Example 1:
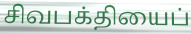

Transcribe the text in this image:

சிவபக்தியைப்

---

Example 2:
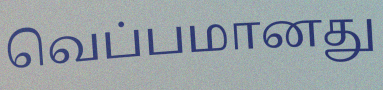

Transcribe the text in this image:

வெப்பமானது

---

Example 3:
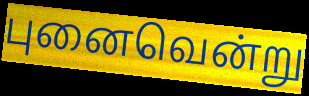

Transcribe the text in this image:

புனைவென்று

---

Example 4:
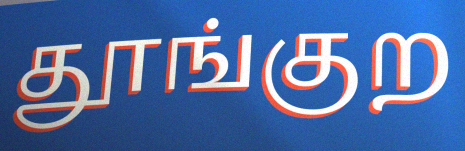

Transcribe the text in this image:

தூங்குற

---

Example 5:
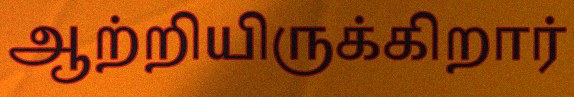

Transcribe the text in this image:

ஆற்றியிருக்கிறார்